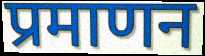
प्रमाणन